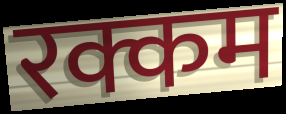
रक्कम